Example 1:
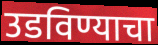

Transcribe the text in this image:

उडविण्याचा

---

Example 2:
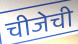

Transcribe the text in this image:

चीजेची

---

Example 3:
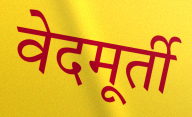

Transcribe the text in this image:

वेदमूर्ती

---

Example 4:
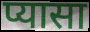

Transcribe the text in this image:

प्यासा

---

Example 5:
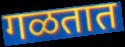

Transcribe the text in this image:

गळतात